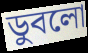
ডুবলো